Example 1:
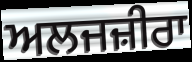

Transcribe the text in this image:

ਅਲਜਜ਼ੀਰਾ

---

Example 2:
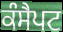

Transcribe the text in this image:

ਕੰਸੈਪਟ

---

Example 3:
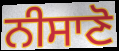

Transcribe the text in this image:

ਨੀਸਾਣੋ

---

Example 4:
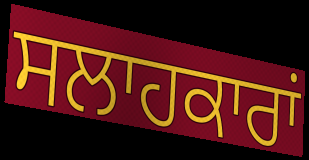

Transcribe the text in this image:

ਸਲਾਹਕਾਰਾਂ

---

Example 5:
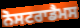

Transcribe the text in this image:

ਨੋਸਟਰਾਡੈਮਸ